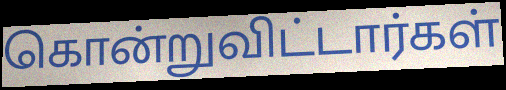
கொன்றுவிட்டார்கள்